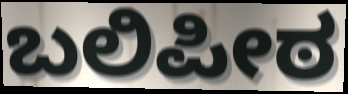
ಬಲಿಪೀಠ